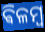
ଵିଳମ୍ବ